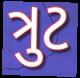
ત્રુટ